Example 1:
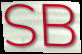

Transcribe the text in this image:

SB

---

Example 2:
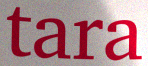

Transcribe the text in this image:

tara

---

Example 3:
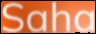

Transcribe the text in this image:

Saha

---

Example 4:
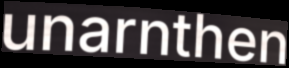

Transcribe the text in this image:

unarnthen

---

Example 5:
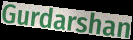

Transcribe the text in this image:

Gurdarshan